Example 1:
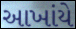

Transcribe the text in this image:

આખાંયે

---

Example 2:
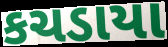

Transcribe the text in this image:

કચડાયા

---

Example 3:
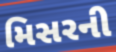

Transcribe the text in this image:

મિસરની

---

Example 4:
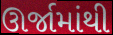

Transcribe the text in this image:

ઊર્જામાંથી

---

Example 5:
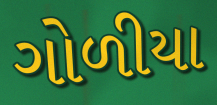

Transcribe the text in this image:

ગોળીયા